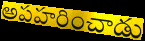
అపహరించాడు